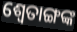
ଶ୍ୱେତାଙ୍ଗଙ୍କ